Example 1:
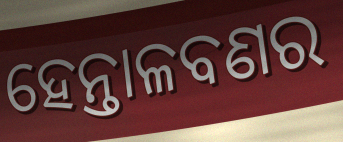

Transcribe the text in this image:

ହେନ୍ତାଳବଣର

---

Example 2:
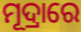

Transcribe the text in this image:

ମୂଦ୍ରାରେ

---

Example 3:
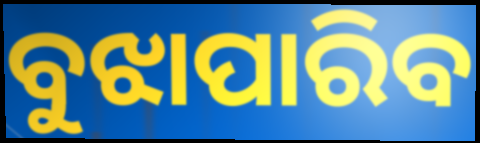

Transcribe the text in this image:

ବୁଝାପାରିବ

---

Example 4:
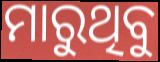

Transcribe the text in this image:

ମାରୁଥିବୁ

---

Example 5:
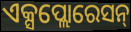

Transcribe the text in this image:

ଏକ୍ସପ୍ଲୋରେସନ୍